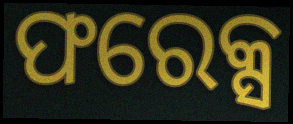
ଫରେକ୍ସ